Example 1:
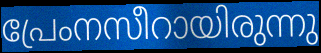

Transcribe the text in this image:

പ്രേംനസീറായിരുന്നു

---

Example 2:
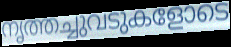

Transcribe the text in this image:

നൃത്തച്ചുവടുകളോടെ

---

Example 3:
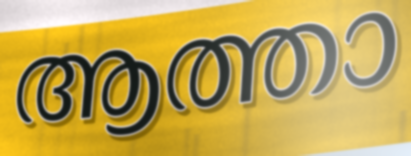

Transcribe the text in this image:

ആത്താ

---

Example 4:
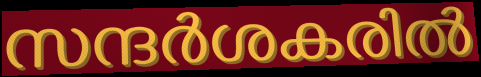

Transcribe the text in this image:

സന്ദർശകരിൽ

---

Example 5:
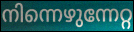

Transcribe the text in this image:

നിന്നെഴുന്നേറ്റ